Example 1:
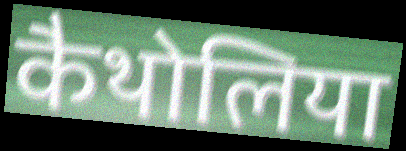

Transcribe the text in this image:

कैथोलिया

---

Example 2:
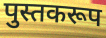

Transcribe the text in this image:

पुस्तकरूप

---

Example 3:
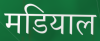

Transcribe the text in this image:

मडियाल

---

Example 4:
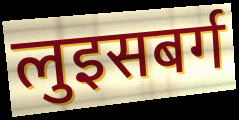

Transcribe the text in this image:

लुइसबर्ग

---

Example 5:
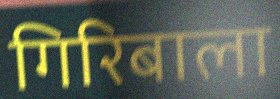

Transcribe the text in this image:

गिरिबाला